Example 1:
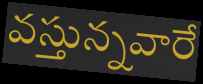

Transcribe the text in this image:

వస్తున్నవారే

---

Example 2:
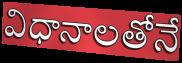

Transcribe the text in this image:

విధానాలతోనే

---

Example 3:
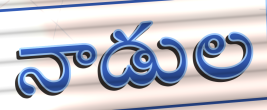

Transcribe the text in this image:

నాడుల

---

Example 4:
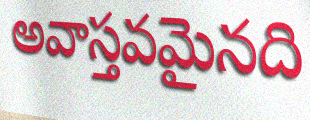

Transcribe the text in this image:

అవాస్తవమైనది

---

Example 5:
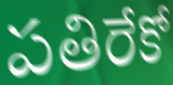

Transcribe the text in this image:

పతిరేకో